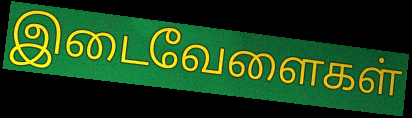
இடைவேளைகள்